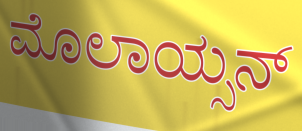
ಮೊಲಾಯ್ಸನ್